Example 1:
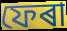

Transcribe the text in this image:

ফেৰা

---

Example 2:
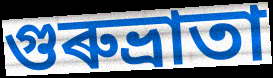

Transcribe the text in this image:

গুৰুভ্ৰাতা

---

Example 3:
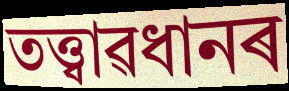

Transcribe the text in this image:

তত্ত্বাৱধানৰ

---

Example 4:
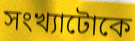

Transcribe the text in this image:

সংখ্যাটোকে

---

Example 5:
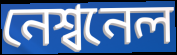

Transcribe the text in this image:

নেশ্বনেল